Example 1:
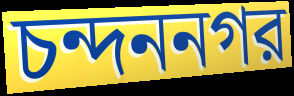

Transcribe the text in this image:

চন্দননগর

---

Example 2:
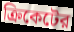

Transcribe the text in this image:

ক্রিকেটের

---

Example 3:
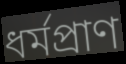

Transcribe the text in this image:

ধর্মপ্রাণ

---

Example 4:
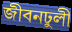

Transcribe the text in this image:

জীবনঢুলী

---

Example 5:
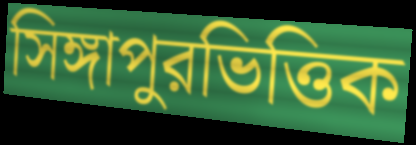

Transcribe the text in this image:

সিঙ্গাপুরভিত্তিক